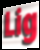
Lig